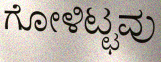
ಗೋಳಿಟ್ಟವು